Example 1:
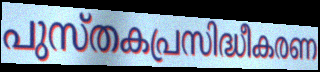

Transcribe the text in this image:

പുസ്തകപ്രസിദ്ധീകരണ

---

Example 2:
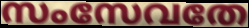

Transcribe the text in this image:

സംസേവതേ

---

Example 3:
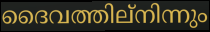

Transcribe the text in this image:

ദൈവത്തില്നിന്നും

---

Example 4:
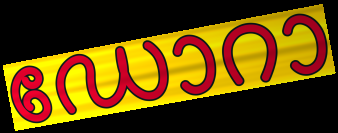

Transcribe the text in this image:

ഡോറാ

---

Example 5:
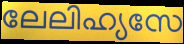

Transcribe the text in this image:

ലേലിഹ്യസേ